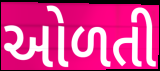
ઓળતી